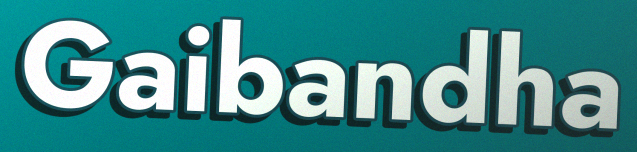
Gaibandha